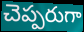
చెప్పరుగా